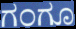
ಗಂಗೂ